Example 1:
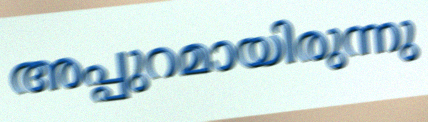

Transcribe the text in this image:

അപ്പുറമായിരുന്നു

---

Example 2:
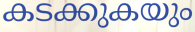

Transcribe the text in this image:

കടക്കുകയും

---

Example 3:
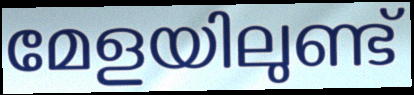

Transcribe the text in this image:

മേളയിലുണ്ട്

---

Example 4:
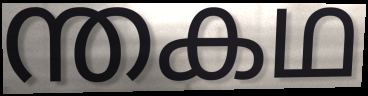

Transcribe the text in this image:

ന്തകഥ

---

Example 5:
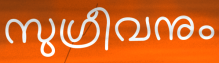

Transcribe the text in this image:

സുഗ്രീവനും